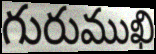
గురుముఖి